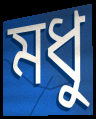
মধু